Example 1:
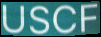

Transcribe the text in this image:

USCF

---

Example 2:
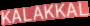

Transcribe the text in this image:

KALAKKAL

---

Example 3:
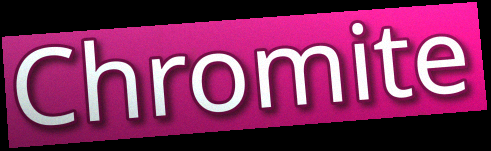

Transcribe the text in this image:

Chromite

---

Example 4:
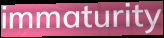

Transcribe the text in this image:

immaturity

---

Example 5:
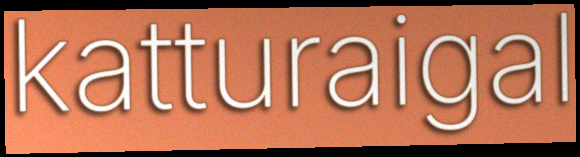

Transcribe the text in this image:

katturaigal